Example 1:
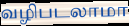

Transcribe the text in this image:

வழிபடலாமா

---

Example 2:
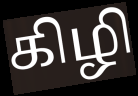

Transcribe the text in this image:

கிழி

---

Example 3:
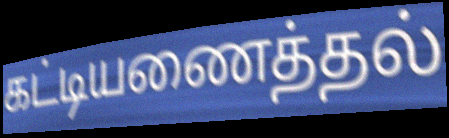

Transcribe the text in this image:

கட்டியணைத்தல்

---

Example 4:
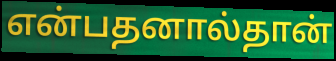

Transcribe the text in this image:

என்பதனால்தான்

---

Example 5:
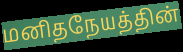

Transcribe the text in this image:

மனிதநேயத்தின்